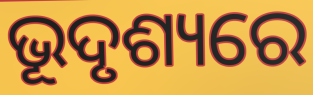
ଭୂଦୃଶ୍ୟରେ